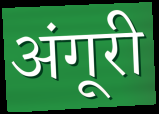
अंगूरी